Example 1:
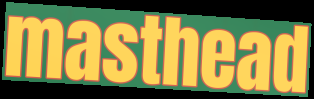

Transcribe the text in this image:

masthead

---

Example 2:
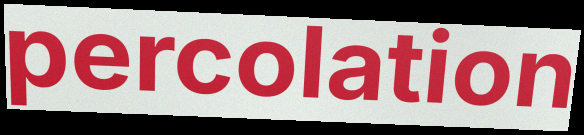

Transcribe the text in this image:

percolation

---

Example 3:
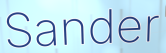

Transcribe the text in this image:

Sander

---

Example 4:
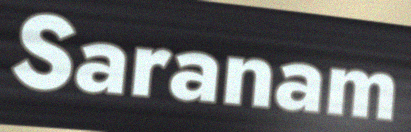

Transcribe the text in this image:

Saranam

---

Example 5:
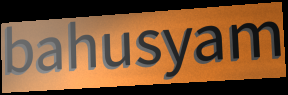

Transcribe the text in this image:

bahusyam